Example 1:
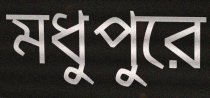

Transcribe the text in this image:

মধুপুরে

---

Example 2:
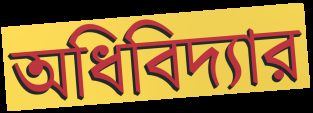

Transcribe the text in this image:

অধিবিদ্যার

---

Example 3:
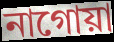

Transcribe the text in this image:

নাগোয়া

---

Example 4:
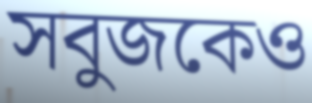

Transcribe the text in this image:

সবুজকেও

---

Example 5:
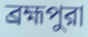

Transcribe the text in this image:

ব্রহ্মপুরা